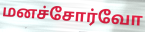
மனச்சோர்வோ